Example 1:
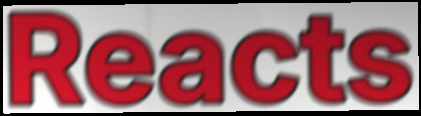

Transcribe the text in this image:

Reacts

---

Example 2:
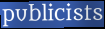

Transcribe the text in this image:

publicists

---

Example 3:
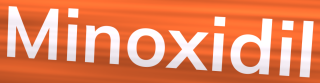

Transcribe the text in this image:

Minoxidil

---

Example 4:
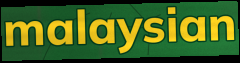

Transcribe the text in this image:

malaysian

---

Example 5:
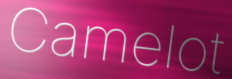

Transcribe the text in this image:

Camelot